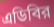
এডিবির